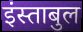
इंस्ताबुल